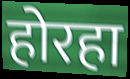
होरहा